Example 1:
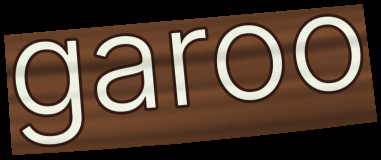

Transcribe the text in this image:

garoo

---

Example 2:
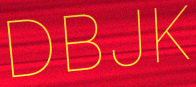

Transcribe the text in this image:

DBJK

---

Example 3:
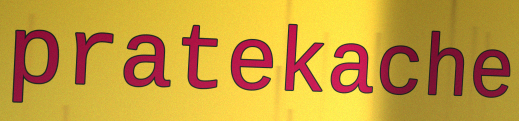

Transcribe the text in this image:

pratekache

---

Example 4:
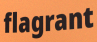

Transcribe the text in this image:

flagrant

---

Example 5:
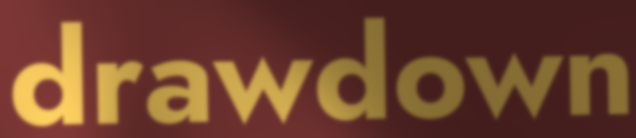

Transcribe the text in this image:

drawdown